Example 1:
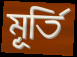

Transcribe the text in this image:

মূৰ্তি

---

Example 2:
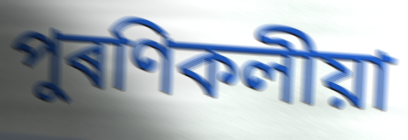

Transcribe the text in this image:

পুৰণিকলীয়া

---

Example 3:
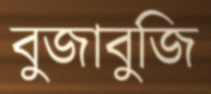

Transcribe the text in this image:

বুজাবুজি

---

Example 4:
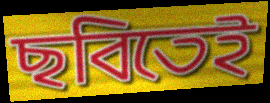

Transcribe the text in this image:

ছবিতেই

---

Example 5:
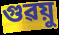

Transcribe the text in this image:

গুৱয়ু